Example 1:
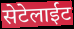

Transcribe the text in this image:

सेटेलाईट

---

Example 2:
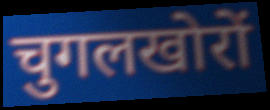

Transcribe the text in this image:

चुगलखोरों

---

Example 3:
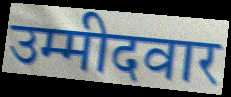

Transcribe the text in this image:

उम्मीदवार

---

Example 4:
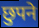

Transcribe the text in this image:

छुपने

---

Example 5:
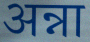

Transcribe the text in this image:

अन्ना